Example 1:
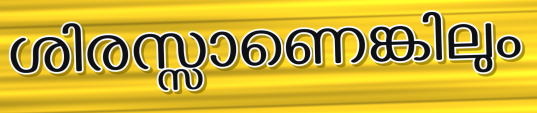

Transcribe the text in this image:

ശിരസ്സാണെങ്കിലും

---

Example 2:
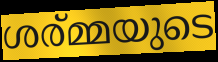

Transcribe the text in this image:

ശര്മ്മയുടെ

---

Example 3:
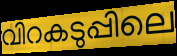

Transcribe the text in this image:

വിറകടുപ്പിലെ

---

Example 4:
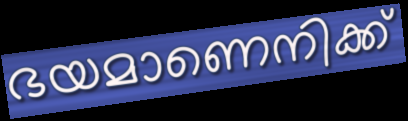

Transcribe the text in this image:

ഭയമാണെനിക്ക്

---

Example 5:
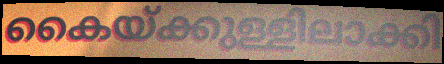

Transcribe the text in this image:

കൈയ്ക്കുള്ളിലാക്കി